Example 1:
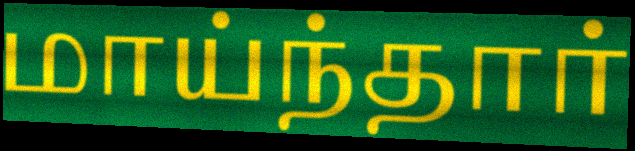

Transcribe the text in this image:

மாய்ந்தார்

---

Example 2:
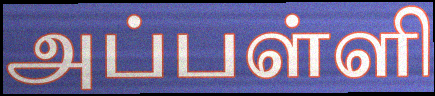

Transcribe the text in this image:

அப்பள்ளி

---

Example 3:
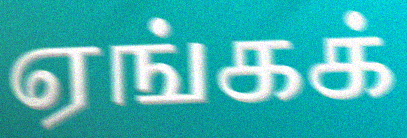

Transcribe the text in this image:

ஏங்கக்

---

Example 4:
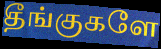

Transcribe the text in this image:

தீங்குகளே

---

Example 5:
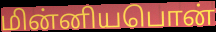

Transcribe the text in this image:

மின்னியபொன்